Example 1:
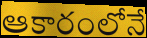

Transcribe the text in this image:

ఆకారంలోనే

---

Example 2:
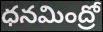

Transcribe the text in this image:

ధనమింద్రో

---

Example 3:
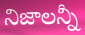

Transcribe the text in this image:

నిజాలన్నీ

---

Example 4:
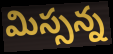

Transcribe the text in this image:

మిస్సన్న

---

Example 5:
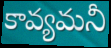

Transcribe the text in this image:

కావ్యమనీ